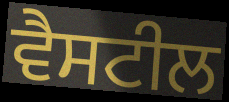
ਵੈਸਟੀਲ